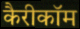
कैरीकॉम